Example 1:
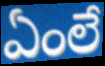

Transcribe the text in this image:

ఏంలే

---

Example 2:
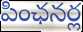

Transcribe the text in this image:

పింఛనర్ల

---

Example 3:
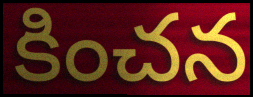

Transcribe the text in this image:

కించన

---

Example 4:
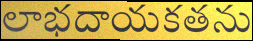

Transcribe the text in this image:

లాభదాయకతను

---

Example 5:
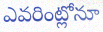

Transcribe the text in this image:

ఎవరింట్లోనూ